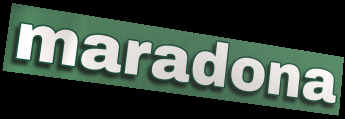
maradona